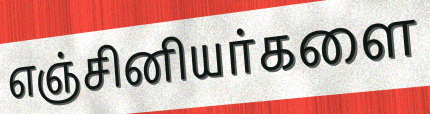
எஞ்சினியர்களை